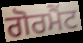
ਗੋਰਮੈਂਟ